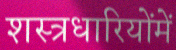
शस्त्रधारियोंमें